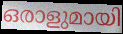
ഒരാളുമായി